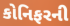
કોનિફરની